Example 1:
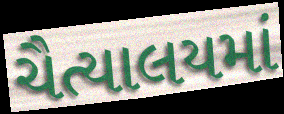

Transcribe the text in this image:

ચૈત્યાલયમાં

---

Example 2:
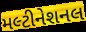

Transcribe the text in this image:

મલ્ટીનેશનલ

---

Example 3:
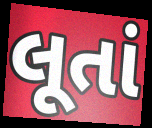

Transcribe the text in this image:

લૂતાં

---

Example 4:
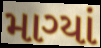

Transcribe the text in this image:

માગ્યાં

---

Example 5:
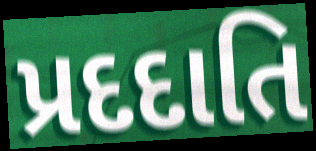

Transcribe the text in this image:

પ્રદદાતિ